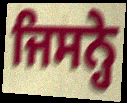
ਜਿਸਨ੍ਹੇ